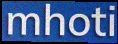
mhoti